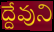
ద్దేవుని